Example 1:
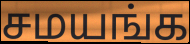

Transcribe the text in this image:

சமயங்க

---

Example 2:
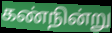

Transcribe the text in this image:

கண்நின்று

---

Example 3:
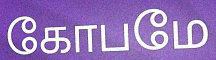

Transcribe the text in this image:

கோபமே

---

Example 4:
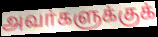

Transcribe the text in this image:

அவர்களுக்குக்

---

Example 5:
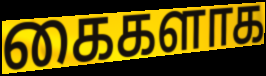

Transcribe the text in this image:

கைகளாக